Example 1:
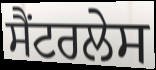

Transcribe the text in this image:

ਸੈਂਟਰਲੇਸ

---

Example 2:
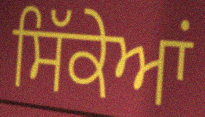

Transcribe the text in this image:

ਸਿੱਕੇਆਂ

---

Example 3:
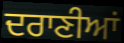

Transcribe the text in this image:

ਦਰਾਣੀਆਂ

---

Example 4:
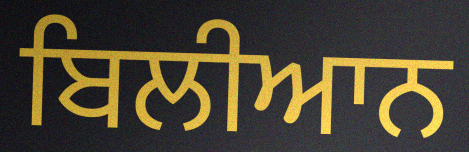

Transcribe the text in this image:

ਬਿਲੀਆਨ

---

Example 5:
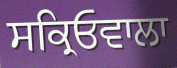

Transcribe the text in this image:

ਸਕ੍ਰਿਓਵਾਲਾ